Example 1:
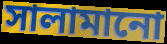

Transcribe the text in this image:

সালামানো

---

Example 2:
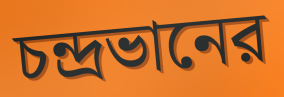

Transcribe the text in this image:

চন্দ্রভানের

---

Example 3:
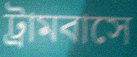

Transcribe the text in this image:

ট্রামবাসে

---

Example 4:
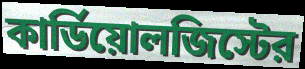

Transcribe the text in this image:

কার্ডিয়োলজিস্টের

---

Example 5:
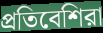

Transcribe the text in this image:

প্রতিবেশিরা